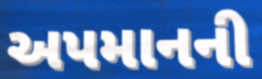
અપમાનની